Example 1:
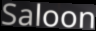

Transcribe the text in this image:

Saloon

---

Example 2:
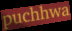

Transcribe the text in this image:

puchhwa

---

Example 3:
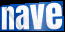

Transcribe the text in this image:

nave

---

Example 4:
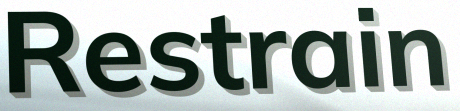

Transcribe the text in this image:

Restrain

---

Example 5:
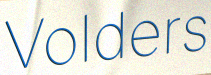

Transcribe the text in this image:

Volders